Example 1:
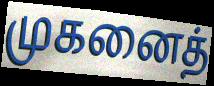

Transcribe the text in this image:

முகனைத்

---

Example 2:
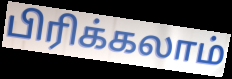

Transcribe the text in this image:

பிரிக்கலாம்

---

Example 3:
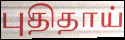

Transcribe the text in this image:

புதிதாய்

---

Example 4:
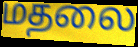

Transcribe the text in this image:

மதலை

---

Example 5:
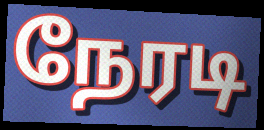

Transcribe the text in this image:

நேரடி